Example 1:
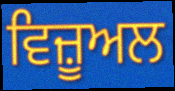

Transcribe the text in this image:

ਵਿਜ਼ੂਅਲ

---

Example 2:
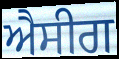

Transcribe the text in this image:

ਐਸੀਗ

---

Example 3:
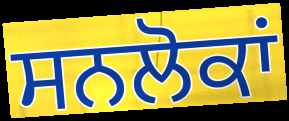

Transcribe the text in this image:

ਸਨਲੋਕਾਂ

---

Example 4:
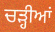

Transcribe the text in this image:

ਚੜ੍ਹੀਆਂ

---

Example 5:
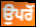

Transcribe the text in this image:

ਉਪਰੋਂ